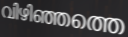
വിഴിഞ്ഞത്തെ